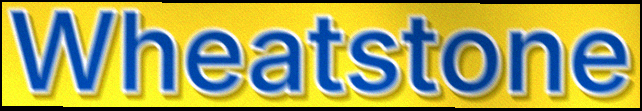
Wheatstone